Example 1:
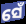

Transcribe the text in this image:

ସେଁ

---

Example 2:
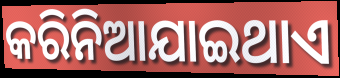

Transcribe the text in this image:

କରିନିଆଯାଇଥାଏ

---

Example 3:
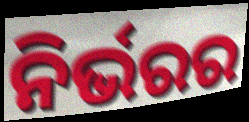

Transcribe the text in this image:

ନିର୍ଭରର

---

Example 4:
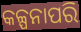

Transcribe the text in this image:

କଳ୍ପନାପରି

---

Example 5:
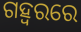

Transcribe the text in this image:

ଗହ୍ୱରରେ